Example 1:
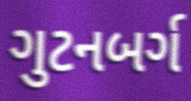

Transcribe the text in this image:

ગુટનબર્ગ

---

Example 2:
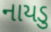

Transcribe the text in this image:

નાયડુ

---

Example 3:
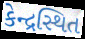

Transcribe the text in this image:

કેન્દ્રસ્થિત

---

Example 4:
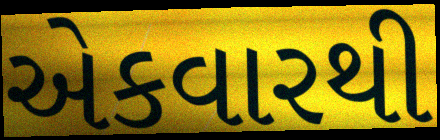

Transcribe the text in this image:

એકવારથી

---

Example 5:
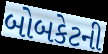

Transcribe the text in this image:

બોબકેટની